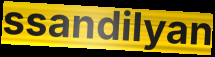
ssandilyan